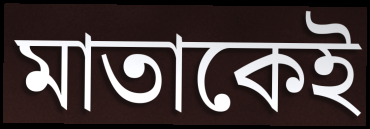
মাতাকেই